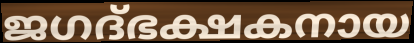
ജഗദ്ഭക്ഷകനായ